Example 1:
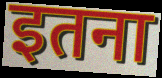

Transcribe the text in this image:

इतना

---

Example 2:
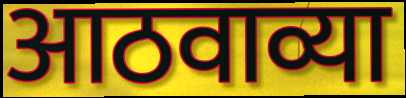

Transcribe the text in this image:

आठवाव्या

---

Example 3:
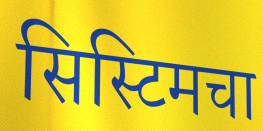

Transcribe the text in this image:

सिस्टिमचा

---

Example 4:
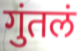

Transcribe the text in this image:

गुंतलं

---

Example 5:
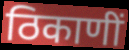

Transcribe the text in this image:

ठिकाणीं